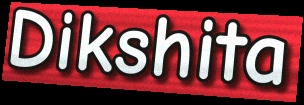
Dikshita